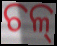
ଚଳ୍